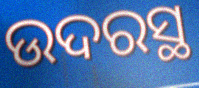
ଉଦରସ୍ଥ